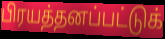
பிரயத்தனப்பட்டுக்